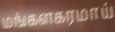
மங்களகரமாய்